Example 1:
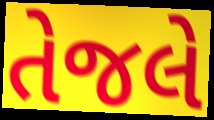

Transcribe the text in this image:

તેજલે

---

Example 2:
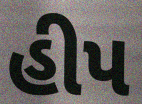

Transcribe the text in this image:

હીપ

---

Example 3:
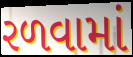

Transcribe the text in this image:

રળવામાં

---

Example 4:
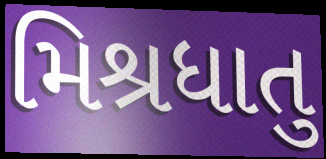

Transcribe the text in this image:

મિશ્રધાતુ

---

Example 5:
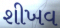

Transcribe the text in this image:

શીખવ